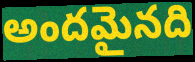
అందమైనది